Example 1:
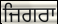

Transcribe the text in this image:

ਜਿਗਰਾ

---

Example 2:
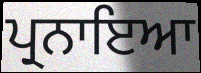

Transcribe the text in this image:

ਪ੍ਰਨਾਇਆ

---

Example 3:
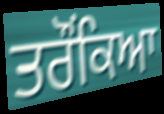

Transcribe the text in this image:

ਤਰੌਂਕਿਆ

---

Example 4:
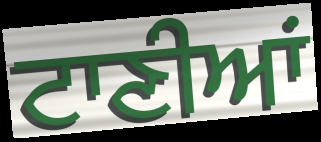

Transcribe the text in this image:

ਟਾਣੀਆਂ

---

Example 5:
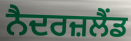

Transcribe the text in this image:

ਨੈਦਰਜ਼ਲੈਂਡ